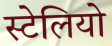
स्टेलियो